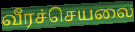
வீரச்செயலை